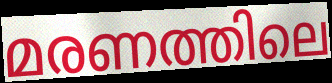
മരണത്തിലെ